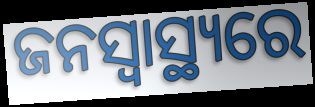
ଜନସ୍ଵାସ୍ଥ୍ୟରେ